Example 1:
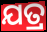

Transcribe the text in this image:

ଯତ୍ର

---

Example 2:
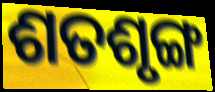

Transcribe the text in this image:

ଶତଶୃଙ୍ଗ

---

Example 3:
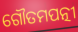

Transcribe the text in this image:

ଗୌତମପତ୍ନୀ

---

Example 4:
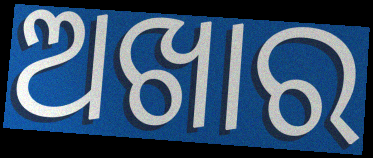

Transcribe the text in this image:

ଅଖାର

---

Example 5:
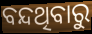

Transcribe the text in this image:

ବନ୍ଦଥିବାରୁ